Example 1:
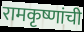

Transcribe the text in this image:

रामकृष्णांची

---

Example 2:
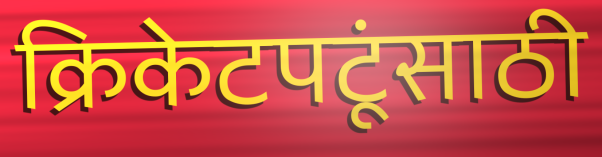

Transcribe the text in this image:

क्रिकेटपटूंसाठी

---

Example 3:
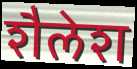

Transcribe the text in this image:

शैलेश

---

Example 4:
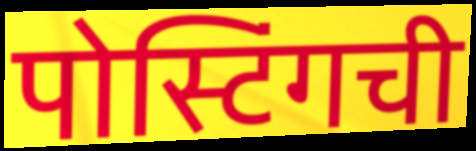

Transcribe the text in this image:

पोस्टिंगची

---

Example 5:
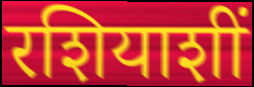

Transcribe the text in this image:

रशियाशीं